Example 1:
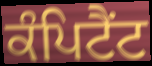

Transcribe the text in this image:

ਕੰਪਿਟੈਂਟ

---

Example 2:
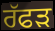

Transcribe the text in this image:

ਰੱਫੜ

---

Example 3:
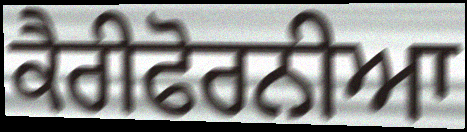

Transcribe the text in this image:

ਕੈਰੀਫੋਰਨੀਆ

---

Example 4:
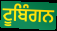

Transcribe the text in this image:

ਟੂਬਿੰਗਨ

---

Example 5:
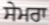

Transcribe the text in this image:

ਸੇਮਰਾ